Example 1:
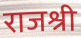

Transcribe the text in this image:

राजश्री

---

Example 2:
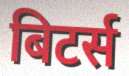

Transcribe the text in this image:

बिटर्स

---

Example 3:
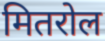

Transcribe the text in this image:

मितरोल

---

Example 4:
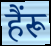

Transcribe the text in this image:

हैंरू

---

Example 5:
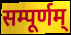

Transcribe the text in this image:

सम्पूर्णम्